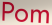
Pom